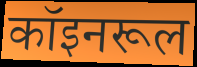
कॉइनरूल